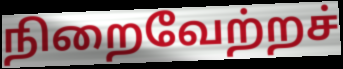
நிறைவேற்றச்